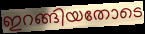
ഇറങ്ങിയതോടെ